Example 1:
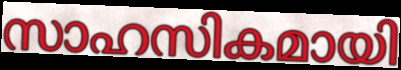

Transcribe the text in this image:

സാഹസികമായി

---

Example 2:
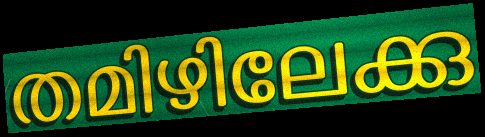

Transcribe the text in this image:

തമിഴിലേക്കു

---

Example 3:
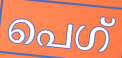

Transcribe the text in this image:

പെഗ്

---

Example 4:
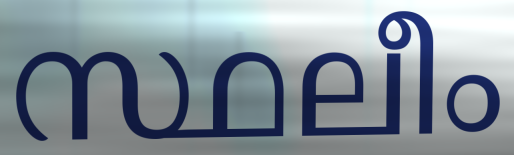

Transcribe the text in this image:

സ്ഥലീം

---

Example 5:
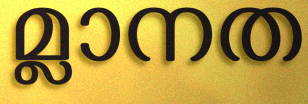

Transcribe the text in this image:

മ്ലാനത